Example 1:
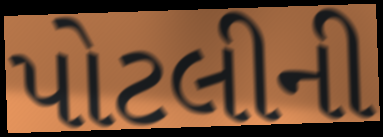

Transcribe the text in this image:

પોટલીની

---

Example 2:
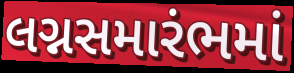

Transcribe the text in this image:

લગ્નસમારંભમાં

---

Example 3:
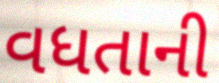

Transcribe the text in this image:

વધતાની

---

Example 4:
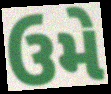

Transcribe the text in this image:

ઉમે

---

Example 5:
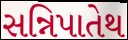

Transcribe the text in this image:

સન્નિપાતેથ